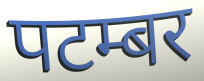
पटम्बर